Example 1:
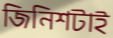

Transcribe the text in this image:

জিনিশটাই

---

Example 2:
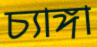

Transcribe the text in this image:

চ্যাঙ্গা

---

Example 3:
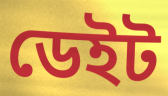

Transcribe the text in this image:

ডেইট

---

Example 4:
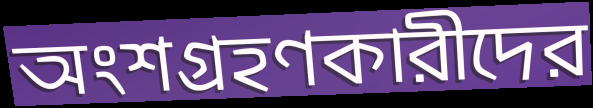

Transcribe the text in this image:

অংশগ্রহণকারীদের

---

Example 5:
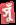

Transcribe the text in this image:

সুঁ